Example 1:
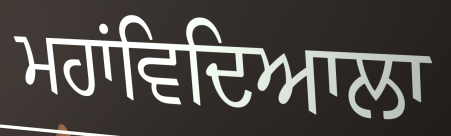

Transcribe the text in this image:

ਮਹਾਂਵਿਦਿਆਲਾ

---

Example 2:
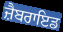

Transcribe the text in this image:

ਜ਼ੈਬਰਾਇਡ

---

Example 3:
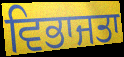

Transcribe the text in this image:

ਵਿਭਾਜਤਾ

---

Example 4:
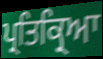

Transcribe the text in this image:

ਪ੍ਰਤਿਕ੍ਰਿਆ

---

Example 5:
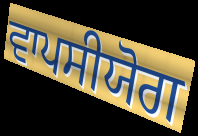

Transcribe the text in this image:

ਵਾਪਸੀਯੋਗ